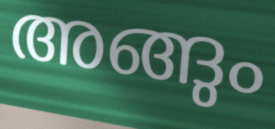
അങ്ങും